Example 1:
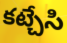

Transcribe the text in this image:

కట్చేసి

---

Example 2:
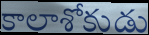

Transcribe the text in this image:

కాలాశోకుడు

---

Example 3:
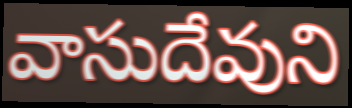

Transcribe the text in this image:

వాసుదేవుని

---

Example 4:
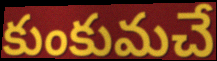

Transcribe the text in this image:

కుంకుమచే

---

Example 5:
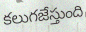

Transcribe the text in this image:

కలుగజేస్తుంది